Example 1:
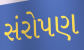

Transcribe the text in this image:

સંરોપણ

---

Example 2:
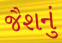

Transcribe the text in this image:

જૈશનું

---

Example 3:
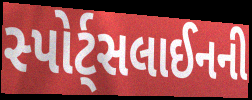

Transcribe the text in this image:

સ્પોર્ટ્સલાઈનની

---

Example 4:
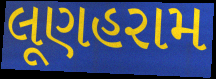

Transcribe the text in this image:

લૂણહરામ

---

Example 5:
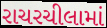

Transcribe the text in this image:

રાચરચીલામાં